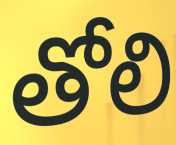
తోలి